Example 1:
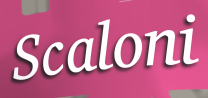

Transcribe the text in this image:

Scaloni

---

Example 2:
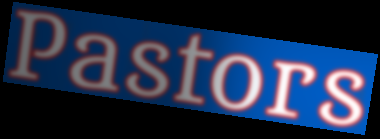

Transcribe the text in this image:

Pastors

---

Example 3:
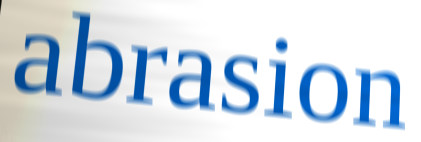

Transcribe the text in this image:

abrasion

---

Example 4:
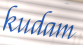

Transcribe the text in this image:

kudam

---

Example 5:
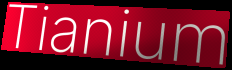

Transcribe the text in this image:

Tianium